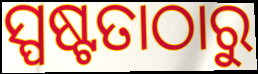
ସ୍ପଷ୍ଟତାଠାରୁ